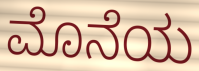
ಮೊನೆಯ